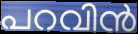
പറവിൻ